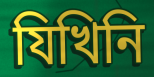
যিখিনি